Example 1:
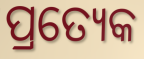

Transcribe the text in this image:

ପ୍ରତ୍ୟେକ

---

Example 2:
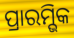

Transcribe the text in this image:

ପ୍ରାରମ୍ଭିକ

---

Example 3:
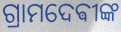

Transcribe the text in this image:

ଗ୍ରାମଦେଵୀଙ୍କ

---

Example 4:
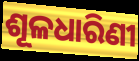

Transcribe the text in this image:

ଶୂଳଧାରିଣୀ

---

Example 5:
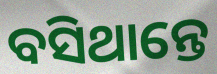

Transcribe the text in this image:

ବସିଥାନ୍ତେ